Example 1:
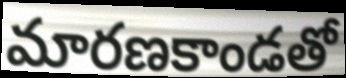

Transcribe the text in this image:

మారణకాండతో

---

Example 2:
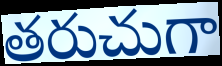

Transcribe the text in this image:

తరుచుగా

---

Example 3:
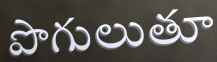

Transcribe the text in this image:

పొగులుతూ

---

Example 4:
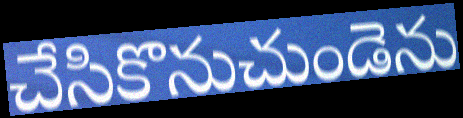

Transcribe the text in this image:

చేసికొనుచుండెను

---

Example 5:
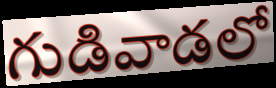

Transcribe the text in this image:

గుడివాడలో